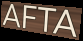
AFTA